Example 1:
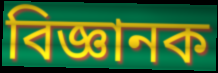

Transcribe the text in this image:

বিজ্ঞানক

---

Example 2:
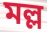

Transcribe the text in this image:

মল্ল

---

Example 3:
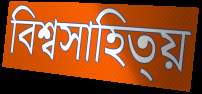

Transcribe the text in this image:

বিশ্বসাহিত্য়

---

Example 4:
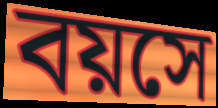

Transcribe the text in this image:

বয়সে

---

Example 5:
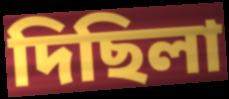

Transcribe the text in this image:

দিছিলা